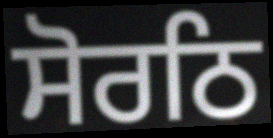
ਸੋਰਠਿ